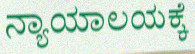
ನ್ಯಾಯಾಲಯಕ್ಕೆ